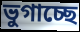
ভুগাচ্ছে